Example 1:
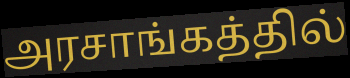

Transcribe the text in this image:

அரசாங்கத்தில்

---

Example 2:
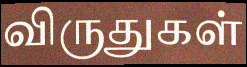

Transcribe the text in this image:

விருதுகள்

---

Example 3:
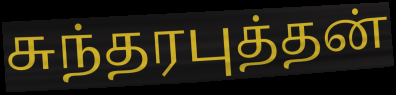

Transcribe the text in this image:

சுந்தரபுத்தன்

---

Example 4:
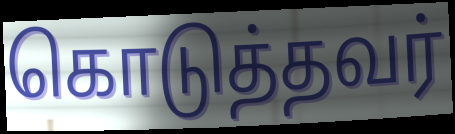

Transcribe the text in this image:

கொடுத்தவர்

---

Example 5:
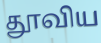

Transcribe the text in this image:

தூவிய